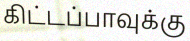
கிட்டப்பாவுக்கு